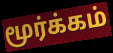
மூர்க்கம்